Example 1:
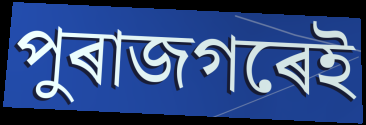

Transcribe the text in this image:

পুৰাজগৰেই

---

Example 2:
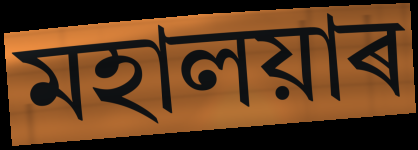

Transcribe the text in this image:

মহালয়াৰ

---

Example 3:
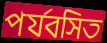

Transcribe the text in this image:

পৰ্যবসিত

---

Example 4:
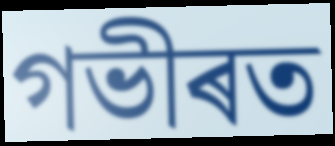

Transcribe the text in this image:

গভীৰত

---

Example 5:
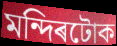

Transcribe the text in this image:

মন্দিৰটোক